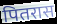
पितरास